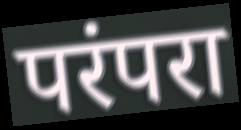
परंपरा